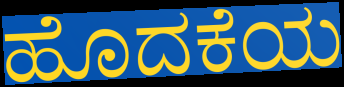
ಹೊದಕೆಯ